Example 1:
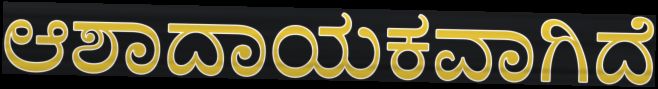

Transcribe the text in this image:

ಆಶಾದಾಯಕವಾಗಿದೆ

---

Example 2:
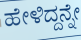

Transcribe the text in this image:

ಹೇಳಿದ್ದನ್ನೇ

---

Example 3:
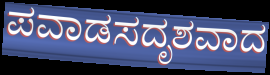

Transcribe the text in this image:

ಪವಾಡಸದೃಶವಾದ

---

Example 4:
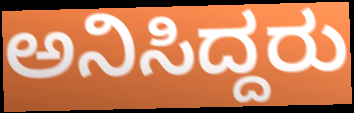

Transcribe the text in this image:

ಅನಿಸಿದ್ದರು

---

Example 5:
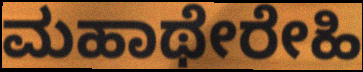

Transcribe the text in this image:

ಮಹಾಥೇರೇಹಿ